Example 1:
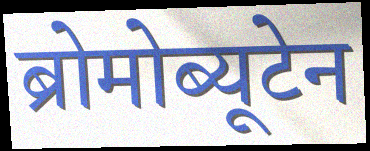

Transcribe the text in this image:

ब्रोमोब्यूटेन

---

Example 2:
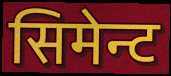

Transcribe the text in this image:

सिमेन्ट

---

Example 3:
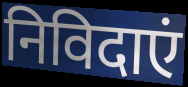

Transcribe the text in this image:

निविदाएं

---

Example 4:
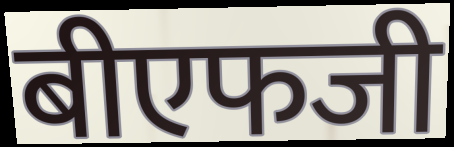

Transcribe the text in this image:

बीएफजी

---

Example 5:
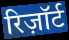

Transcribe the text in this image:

रिज़ॉर्ट